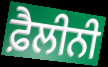
ਫ਼ੈਲੀਨੀ